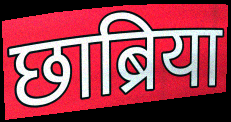
छाब्रिया